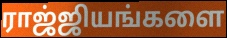
ராஜ்ஜியங்களை